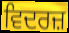
ਵਿਦਰਜ਼